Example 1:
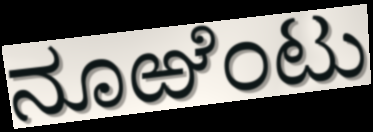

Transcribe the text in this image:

ನೂಱೆಂಟು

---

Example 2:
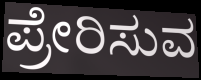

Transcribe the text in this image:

ಪ್ರೇರಿಸುವ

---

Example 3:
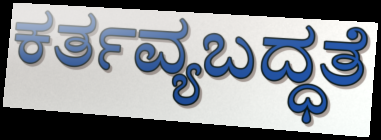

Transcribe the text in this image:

ಕರ್ತವ್ಯಬದ್ಧತೆ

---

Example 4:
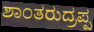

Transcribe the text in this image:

ಶಾಂತರುದ್ರಪ್ಪ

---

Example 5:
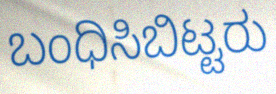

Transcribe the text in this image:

ಬಂಧಿಸಿಬಿಟ್ಟರು